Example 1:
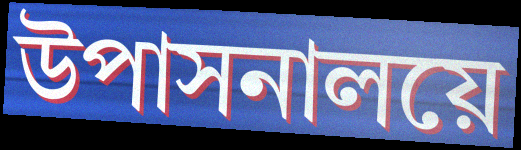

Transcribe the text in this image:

উপাসনালয়ে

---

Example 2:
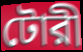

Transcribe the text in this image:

টোরী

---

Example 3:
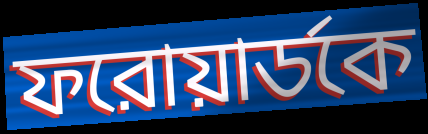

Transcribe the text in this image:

ফরোয়ার্ডকে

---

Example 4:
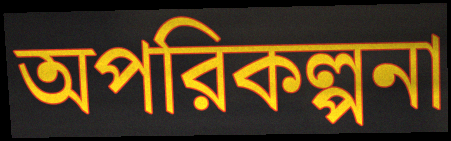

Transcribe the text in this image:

অপরিকল্পনা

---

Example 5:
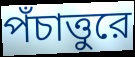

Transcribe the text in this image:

পঁচাত্তুরে